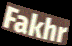
Fakhr